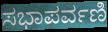
ಸಭಾಪರ್ವಣಿ